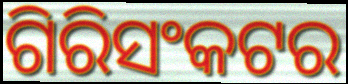
ଗିରିସଂକଟର